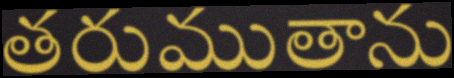
తరుముతాను